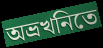
অভ্রখনিতে